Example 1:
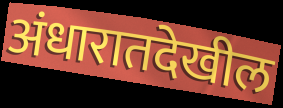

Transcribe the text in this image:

अंधारातदेखील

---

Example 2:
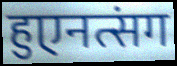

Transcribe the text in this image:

हुएनत्संग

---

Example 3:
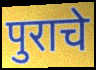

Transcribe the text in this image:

पुराचे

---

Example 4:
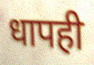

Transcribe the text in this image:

धापही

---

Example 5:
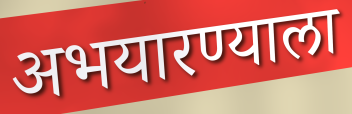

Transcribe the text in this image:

अभयारण्याला